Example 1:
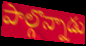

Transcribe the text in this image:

పాల్గొన్నాడు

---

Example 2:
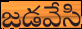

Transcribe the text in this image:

జడవేసి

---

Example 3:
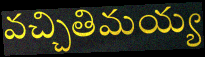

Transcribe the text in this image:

వచ్చితిమయ్య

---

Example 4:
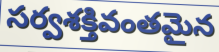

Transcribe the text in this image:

సర్వశక్తివంతమైన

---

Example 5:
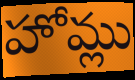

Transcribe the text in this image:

హోమ్లు